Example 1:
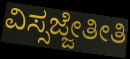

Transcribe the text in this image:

ವಿಸ್ಸಜ್ಜೇತೀತಿ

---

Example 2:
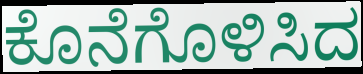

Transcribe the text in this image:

ಕೊನೆಗೊಳಿಸಿದ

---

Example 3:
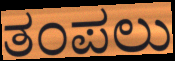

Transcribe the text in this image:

ತಂಪಲು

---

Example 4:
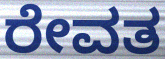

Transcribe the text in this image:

ರೇವತ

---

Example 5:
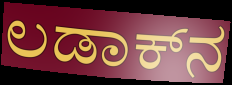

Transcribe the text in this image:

ಲಡಾಕ್‌ನ